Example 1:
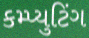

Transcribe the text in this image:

કમ્પ્યુટિંગ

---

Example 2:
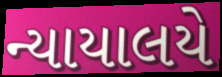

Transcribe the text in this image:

ન્યાયાલયે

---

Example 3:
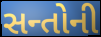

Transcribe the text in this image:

સન્તોની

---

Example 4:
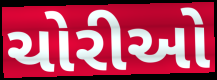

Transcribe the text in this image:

ચોરીઓ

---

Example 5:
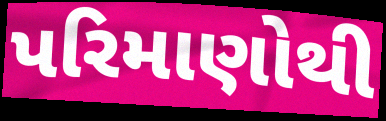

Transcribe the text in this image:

પરિમાણોથી